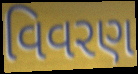
વિવરણ